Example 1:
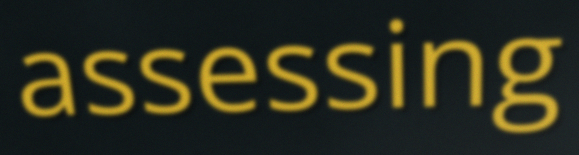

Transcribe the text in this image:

assessing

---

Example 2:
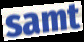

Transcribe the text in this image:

samt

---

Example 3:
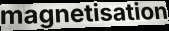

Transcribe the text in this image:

magnetisation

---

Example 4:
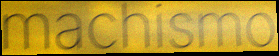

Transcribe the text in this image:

machismo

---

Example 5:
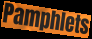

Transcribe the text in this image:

Pamphlets